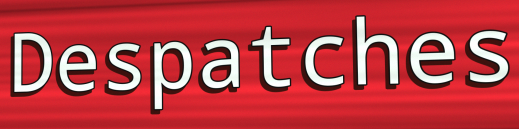
Despatches